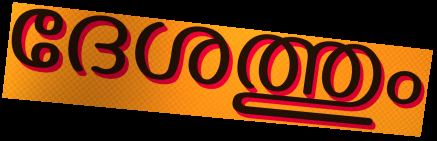
ദേശത്തും